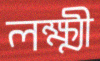
লক্ষ্মী